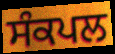
ਸੰਕਪਲ